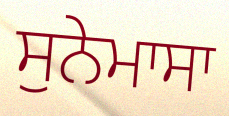
ਸੁਨੇਮਾਸਾ